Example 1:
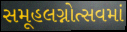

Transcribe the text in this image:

સમૂહલગ્નોત્સવમાં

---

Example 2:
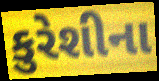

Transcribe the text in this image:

કુરેશીના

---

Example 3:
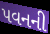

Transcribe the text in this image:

પવનની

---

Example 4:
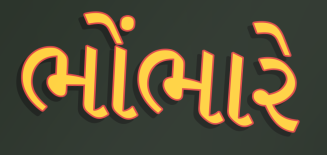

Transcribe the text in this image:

ભોંભારે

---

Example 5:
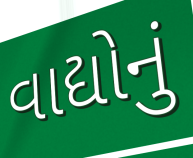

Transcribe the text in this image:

વાદ્યોનું